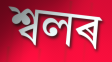
শ্বলৰ